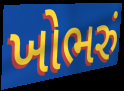
ખોભરું